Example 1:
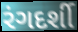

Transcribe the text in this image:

રંગદર્શી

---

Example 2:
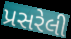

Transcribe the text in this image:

પ્રસરેલી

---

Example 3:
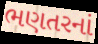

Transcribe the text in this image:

ભણતરનાં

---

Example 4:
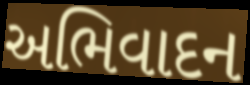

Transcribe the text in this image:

અભિવાદન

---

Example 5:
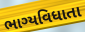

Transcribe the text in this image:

ભાગ્યવિધાતા